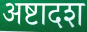
अष्टादश